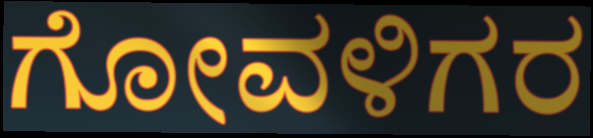
ಗೋವಳಿಗರ